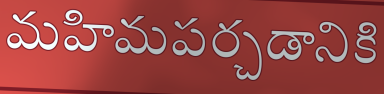
మహిమపర్చడానికి